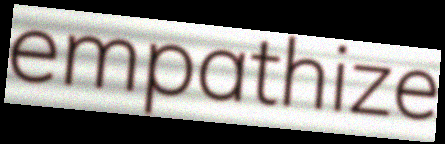
empathize